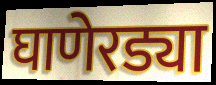
घाणेरड्या